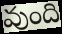
వుంది